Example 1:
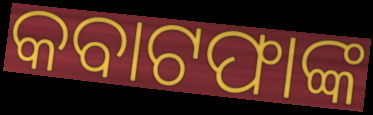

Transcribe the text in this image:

କବାଟଫାଙ୍କ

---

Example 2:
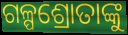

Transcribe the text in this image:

ଗଳ୍ପଶ୍ରୋତାଙ୍କୁ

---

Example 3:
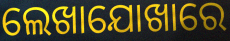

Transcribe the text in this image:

ଲେଖାଯୋଖାରେ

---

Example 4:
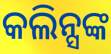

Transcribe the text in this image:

କଲିନ୍ସଙ୍କ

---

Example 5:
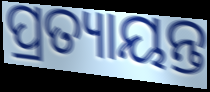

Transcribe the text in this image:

ପ୍ରତ୍ୟାୟନ୍ତ